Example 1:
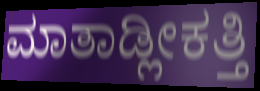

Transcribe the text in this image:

ಮಾತಾಡ್ಲೀಕತ್ತಿ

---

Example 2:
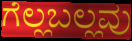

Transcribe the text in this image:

ಗೆಲ್ಲಬಲ್ಲವು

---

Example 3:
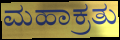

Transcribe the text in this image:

ಮಹಾಕ್ರತು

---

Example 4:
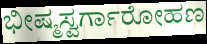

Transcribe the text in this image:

ಭೀಷ್ಮಸ್ವರ್ಗಾರೋಹಣ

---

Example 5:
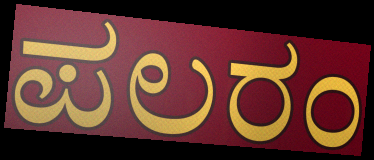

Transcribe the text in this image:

ಪಲರಂ